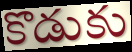
కొడుకు